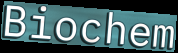
Biochem